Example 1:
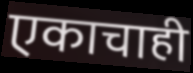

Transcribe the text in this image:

एकाचाही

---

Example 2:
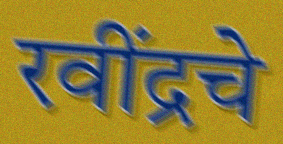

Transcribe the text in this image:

रवींद्रचे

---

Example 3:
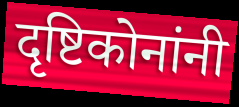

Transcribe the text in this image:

दृष्टिकोनांनी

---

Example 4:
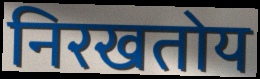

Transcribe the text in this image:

निरखतोय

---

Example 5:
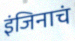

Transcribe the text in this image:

इंजिनाचं